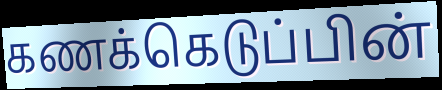
கணக்கெடுப்பின்